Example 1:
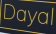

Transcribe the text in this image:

Dayal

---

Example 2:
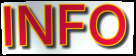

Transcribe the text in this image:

INFO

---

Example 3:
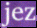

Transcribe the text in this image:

jez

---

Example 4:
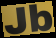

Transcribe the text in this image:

Jb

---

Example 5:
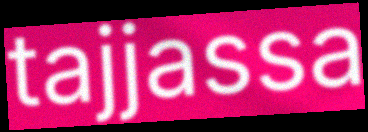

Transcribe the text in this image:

tajjassa